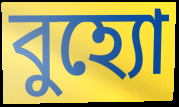
বুহ্যো